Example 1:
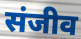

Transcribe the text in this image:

संजीव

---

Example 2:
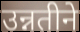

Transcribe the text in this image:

उन्नतीने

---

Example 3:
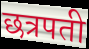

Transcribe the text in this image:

छत्रपती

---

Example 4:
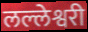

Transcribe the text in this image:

लल्लेश्वरी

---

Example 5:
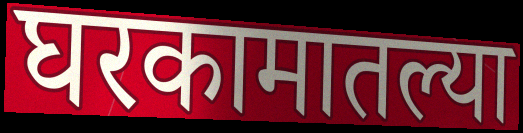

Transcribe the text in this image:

घरकामातल्या